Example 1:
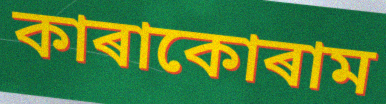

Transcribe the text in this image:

কাৰাকোৰাম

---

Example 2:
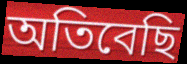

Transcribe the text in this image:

অতিবেছি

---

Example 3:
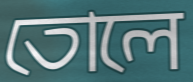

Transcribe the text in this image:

তোলে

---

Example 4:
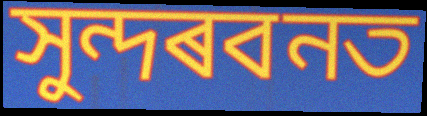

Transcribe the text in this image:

সুন্দৰবনত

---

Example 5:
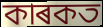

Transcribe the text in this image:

কাৰকত